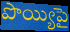
పొయ్యిపై